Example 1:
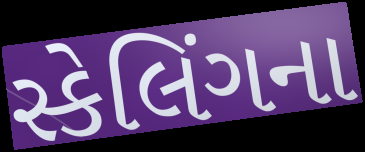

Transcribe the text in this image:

સ્કેલિંગના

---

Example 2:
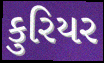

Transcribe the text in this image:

કુરિયર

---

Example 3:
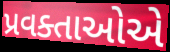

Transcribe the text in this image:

પ્રવક્તાઓએ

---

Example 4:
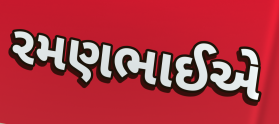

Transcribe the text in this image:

રમણભાઈએ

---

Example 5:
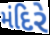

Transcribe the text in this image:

મંદિરે